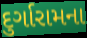
દુર્ગારામના